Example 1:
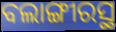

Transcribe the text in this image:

ବଲାଙ୍ଗୀରସ୍ଥ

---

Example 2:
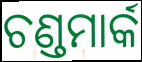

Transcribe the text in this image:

ଚଣ୍ଡମାର୍କ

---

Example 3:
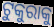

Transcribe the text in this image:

ଟୁକୁରାକୁ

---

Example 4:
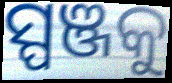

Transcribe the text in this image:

ସ୍ପଞ୍ଜକୁ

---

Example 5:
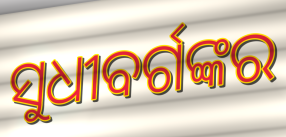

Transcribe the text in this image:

ସୁଧୀବର୍ଗଙ୍କର